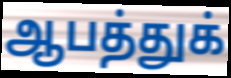
ஆபத்துக்